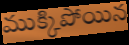
ముక్కిపోయిన